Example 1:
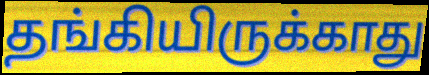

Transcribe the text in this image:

தங்கியிருக்காது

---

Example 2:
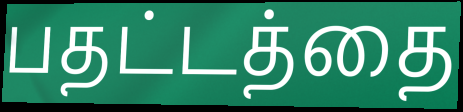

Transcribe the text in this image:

பதட்டத்தை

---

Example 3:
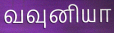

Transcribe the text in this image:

வவுனியா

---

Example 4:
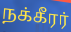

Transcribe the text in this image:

நக்கீரர்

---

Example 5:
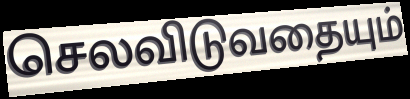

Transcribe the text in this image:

செலவிடுவதையும்